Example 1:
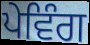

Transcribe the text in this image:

ਪੇਵਿੰਗ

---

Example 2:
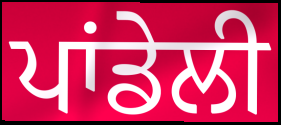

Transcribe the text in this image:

ਪਾਂਡੇਲੀ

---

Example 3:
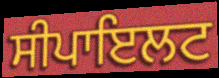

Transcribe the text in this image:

ਸੀਪਾਇਲਟ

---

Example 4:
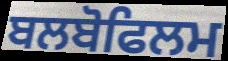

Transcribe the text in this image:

ਬਲਬੋਫਿਲਮ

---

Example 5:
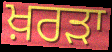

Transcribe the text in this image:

ਖ਼ਰੜਾ